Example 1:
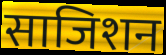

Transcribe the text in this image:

साजिशन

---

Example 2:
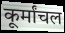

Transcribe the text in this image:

कूर्मांचल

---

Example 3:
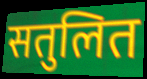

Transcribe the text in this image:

सतुलित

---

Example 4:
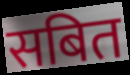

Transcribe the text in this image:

सबित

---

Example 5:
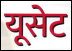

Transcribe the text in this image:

यूसेट